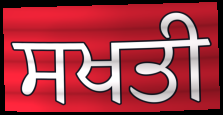
ਸਖਤੀ